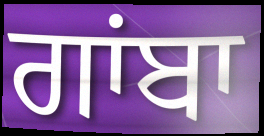
ਗਾਂਬਾ